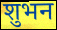
शुभन